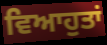
ਵਿਆਹੁਤਾਂ